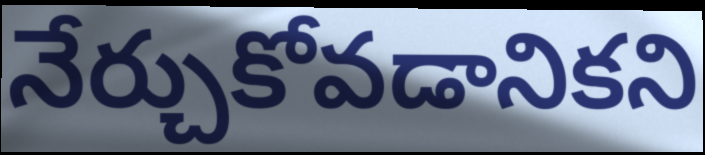
నేర్చుకోవడానికని